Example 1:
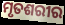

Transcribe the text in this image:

ମୃତଶରୀର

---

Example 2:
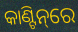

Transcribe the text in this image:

କାଣ୍ଟିନ୍‌ରେ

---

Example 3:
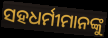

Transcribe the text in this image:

ସହଧର୍ମୀମାନଙ୍କୁ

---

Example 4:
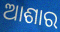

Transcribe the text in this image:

ଆଶାର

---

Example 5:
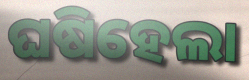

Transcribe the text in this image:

ଘଷିହେଲା